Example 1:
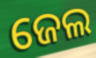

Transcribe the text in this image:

ଜେଲ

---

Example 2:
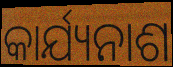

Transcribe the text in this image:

କାର୍ଯ୍ୟନାଶ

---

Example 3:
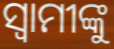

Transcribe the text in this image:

ସ୍ବାମୀଙ୍କୁ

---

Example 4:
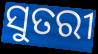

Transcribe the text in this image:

ସୁତରୀ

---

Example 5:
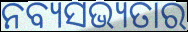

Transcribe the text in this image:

ନବ୍ୟସଭ୍ୟତାର